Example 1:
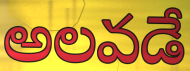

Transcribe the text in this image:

అలవడే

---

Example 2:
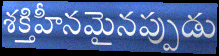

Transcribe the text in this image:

శక్తిహీనమైనప్పుడు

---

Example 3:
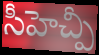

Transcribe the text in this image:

సీహెచ్పీ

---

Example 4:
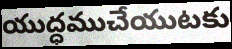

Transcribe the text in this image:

యుద్ధముచేయుటకు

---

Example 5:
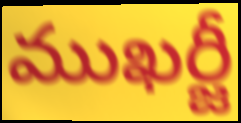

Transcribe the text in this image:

ముఖర్జీ